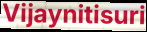
Vijaynitisuri